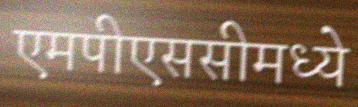
एमपीएससीमध्ये